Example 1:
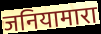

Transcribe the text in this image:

जनियामारा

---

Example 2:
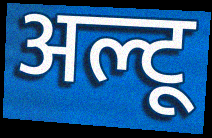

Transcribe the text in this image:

अल्टू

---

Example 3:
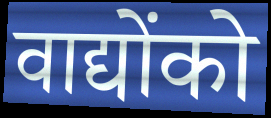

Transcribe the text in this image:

वाद्योंको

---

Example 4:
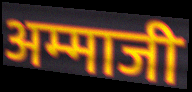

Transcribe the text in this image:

अम्माजी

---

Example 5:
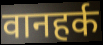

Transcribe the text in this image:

वानहर्क